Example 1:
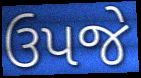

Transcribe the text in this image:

ઉપજે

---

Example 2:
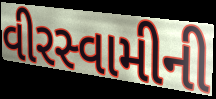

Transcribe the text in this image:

વીરસ્વામીની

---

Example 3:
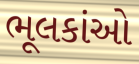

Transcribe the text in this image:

ભૂલકાંઓ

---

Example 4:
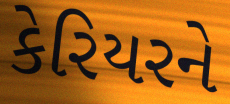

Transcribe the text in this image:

કેરિયરને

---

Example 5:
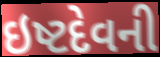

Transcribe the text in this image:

ઇષ્ટદેવની